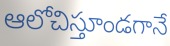
ఆలోచిస్తూండగానే